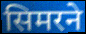
सिमरने